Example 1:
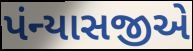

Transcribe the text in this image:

પંન્યાસજીએ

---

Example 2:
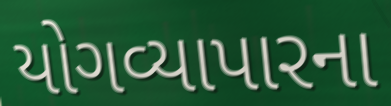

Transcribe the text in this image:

યોગવ્યાપારના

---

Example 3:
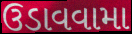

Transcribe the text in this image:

ઉડાવવામા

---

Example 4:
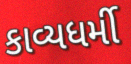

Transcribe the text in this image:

કાવ્યધર્મી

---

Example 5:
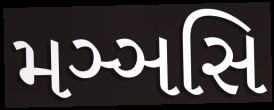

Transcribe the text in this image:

મઞ્ઞસિ